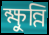
ক্ষুন্নি